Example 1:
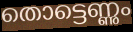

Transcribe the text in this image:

തൊട്ടെണ്ണും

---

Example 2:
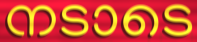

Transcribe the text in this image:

നടാടെ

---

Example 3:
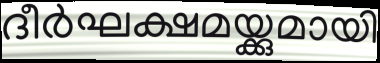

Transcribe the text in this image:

ദീർഘക്ഷമയ്ക്കുമായി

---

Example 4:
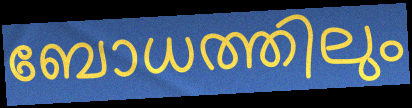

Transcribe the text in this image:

ബോധത്തിലും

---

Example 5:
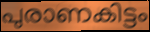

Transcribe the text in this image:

പുരാണകിട്ടം